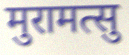
मुरामत्सु